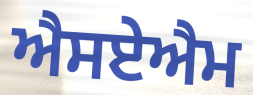
ਐਸਏਐਮ